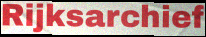
Rijksarchief